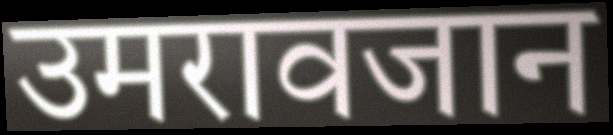
उमरावजान